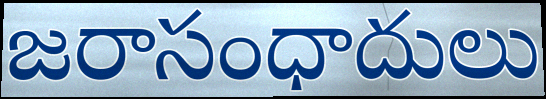
జరాసంధాదులు